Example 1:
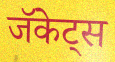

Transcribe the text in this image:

जॅकेट्स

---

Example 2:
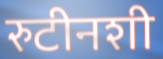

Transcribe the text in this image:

रुटीनशी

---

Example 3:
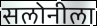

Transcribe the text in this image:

सलोनीला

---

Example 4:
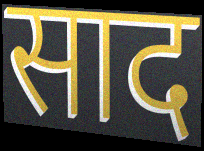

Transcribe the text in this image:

साद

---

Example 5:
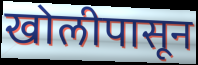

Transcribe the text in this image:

खोलीपासून